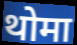
थोमा